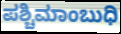
ಪಶ್ಚಿಮಾಂಬುಧಿ